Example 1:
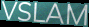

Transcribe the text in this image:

VSLAM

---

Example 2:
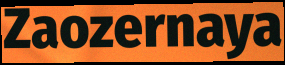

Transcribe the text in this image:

Zaozernaya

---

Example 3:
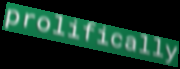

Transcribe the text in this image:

prolifically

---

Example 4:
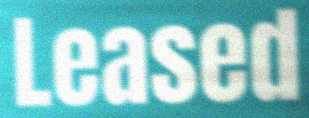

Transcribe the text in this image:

Leased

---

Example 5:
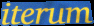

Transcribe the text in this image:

iterum